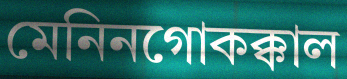
মেনিনগোকক্কাল